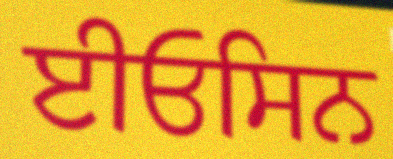
ਈਓਸਿਨ